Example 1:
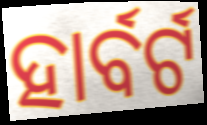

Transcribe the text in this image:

ହାର୍ବର୍ଟ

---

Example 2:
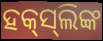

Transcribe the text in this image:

ହକ୍‌ସ୍‌ଲିଙ୍କ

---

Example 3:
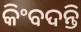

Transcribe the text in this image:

କିଂବଦନ୍ତି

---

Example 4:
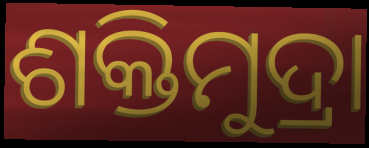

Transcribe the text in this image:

ଶକ୍ତିମୁଦ୍ରା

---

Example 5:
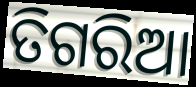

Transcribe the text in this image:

ତିଗରିଆ